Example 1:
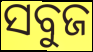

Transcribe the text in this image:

ସବୁଜ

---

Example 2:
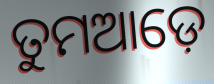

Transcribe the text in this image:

ତୁମଆଡ଼େ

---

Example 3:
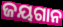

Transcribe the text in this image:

ଜୟଗାନ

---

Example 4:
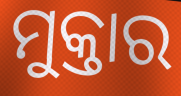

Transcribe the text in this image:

ମୁକ୍ତାର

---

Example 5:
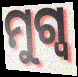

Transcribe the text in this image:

ମୁଗ୍ୱ